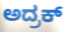
ಅದ್ರಕ್